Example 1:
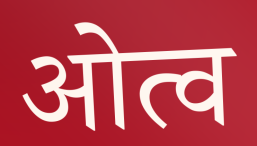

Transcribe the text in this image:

ओत्व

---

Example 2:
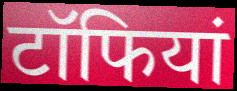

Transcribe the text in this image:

टॉफियां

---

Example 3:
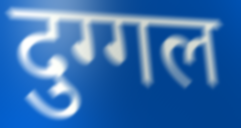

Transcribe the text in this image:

दुग्गल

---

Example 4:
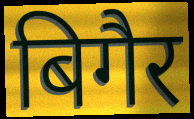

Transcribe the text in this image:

बिगैर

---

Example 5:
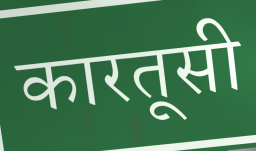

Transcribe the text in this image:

कारतूसी